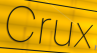
Crux